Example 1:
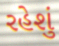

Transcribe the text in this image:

રહેશું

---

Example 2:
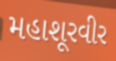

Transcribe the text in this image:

મહાશૂરવીર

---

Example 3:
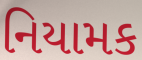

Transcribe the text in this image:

નિયામક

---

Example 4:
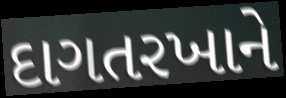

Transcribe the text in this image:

દાગતરખાને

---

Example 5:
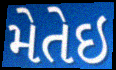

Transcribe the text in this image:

મેતેઇ